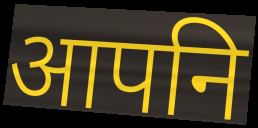
आपनि